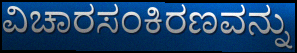
ವಿಚಾರಸಂಕಿರಣವನ್ನು